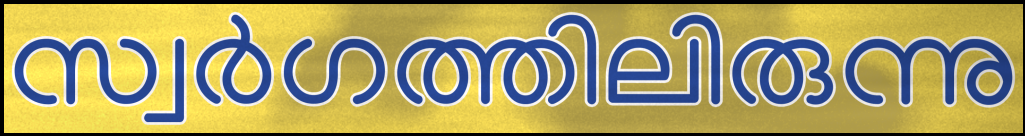
സ്വർഗത്തിലിരുന്നു